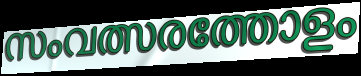
സംവത്സരത്തോളം